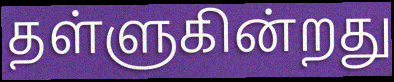
தள்ளுகின்றது